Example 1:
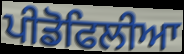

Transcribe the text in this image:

ਪੀਡੋਫਿਲੀਆ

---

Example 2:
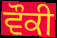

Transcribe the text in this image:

ਵੌਕੀ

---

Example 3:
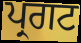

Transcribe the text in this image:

ਪ੍ਰਗਟ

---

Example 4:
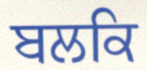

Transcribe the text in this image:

ਬਲਕਿ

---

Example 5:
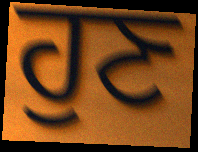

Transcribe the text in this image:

ਹੁਣ